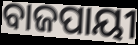
ବାଜପାୟୀ